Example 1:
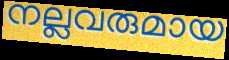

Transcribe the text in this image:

നല്ലവരുമായ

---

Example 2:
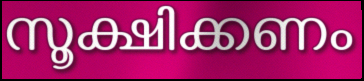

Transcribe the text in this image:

സൂക്ഷിക്കണം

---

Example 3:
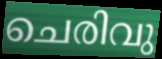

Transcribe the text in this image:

ചെരിവു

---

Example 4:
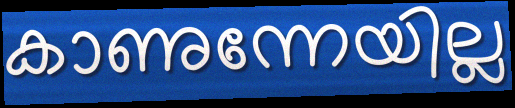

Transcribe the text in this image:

കാണുന്നേയില്ല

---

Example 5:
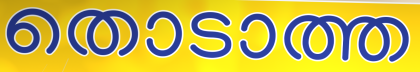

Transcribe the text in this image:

തൊടാത്ത